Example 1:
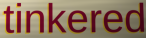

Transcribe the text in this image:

tinkered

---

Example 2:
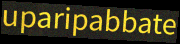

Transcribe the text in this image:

uparipabbate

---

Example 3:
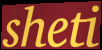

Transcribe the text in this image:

sheti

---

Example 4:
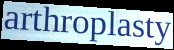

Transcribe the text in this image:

arthroplasty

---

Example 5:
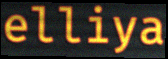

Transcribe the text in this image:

elliya